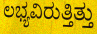
ಲಭ್ಯವಿರುತ್ತಿತ್ತು